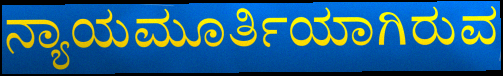
ನ್ಯಾಯಮೂರ್ತಿಯಾಗಿರುವ